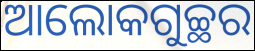
ଆଲୋକଗୁଚ୍ଛର